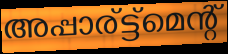
അപ്പാര്ട്ട്മെന്റ്